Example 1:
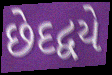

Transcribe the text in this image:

છેદદ્વયે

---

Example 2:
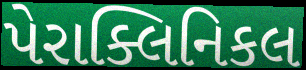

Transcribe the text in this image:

પેરાક્લિનિકલ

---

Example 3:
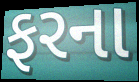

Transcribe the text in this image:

ફરના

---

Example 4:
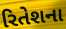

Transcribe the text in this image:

રિતેશના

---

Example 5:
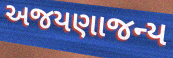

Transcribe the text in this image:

અજયણાજન્ય